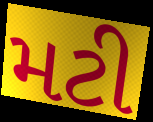
મટી